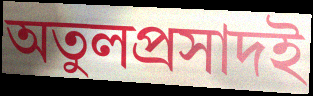
অতুলপ্রসাদই